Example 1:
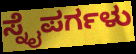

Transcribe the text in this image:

ಸ್ನೈಪರ್ಗಳು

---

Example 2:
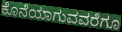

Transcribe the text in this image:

ಕೊನೆಯಾಗುವವರೆಗೂ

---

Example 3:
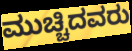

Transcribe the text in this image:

ಮುಚ್ಚಿದವರು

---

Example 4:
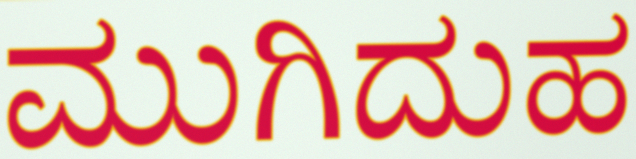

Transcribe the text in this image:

ಮುಗಿದುಹ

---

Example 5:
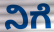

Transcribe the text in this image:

ನಿಗೆ